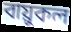
বায়ুকল